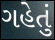
ગહેતું